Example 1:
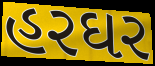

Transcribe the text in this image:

હરઘર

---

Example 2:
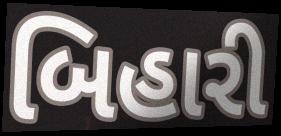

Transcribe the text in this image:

બિહારી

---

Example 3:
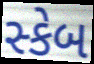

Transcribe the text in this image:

સ્કેબ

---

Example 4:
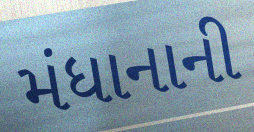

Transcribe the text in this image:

મંધાનાની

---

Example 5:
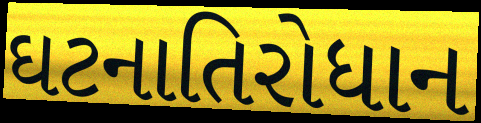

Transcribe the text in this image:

ઘટનાતિરોધાન